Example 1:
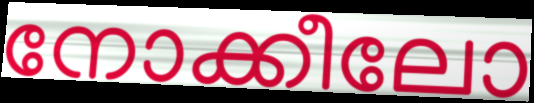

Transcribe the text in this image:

നോക്കീലോ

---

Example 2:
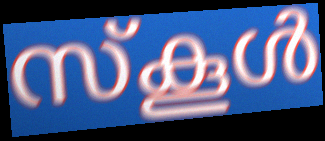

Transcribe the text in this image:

സ്‌കൂൾ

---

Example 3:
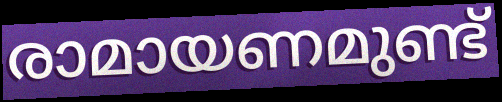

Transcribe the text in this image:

രാമായണമുണ്ട്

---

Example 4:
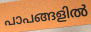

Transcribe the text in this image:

പാപങ്ങളിൽ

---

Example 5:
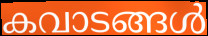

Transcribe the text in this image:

കവാടങ്ങൾ